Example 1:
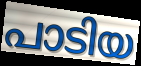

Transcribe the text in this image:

പാടിയ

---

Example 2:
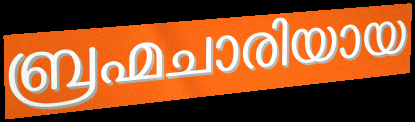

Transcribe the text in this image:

ബ്രഹ്മചാരിയായ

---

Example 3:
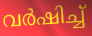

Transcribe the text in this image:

വർഷിച്ച്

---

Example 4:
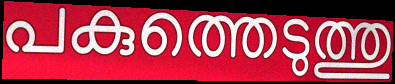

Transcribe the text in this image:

പകുത്തെടുത്തു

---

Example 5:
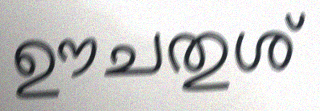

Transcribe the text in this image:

ഊചതുശ്